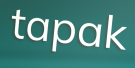
tapak